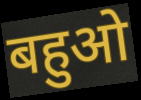
बहुओ